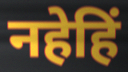
नहेहिं